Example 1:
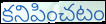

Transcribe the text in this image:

కనిపించటం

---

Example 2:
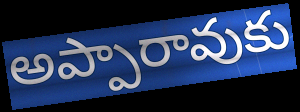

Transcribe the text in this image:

అప్పారావుకు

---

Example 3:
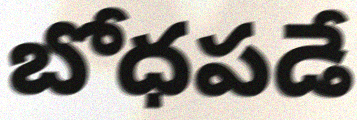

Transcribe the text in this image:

బోధపడే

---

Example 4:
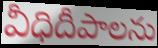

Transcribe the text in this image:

వీధిదీపాలను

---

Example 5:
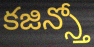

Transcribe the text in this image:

కజిన్స్తో